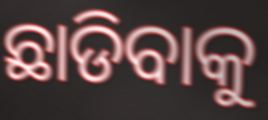
ଛାଡିବାକୁ